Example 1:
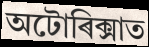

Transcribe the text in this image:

অটোৰিক্সাত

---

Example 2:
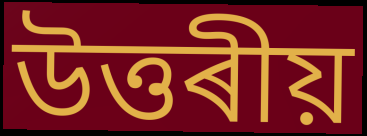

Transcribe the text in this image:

উত্তৰীয়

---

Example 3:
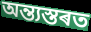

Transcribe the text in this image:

অন্ত্যস্তৰত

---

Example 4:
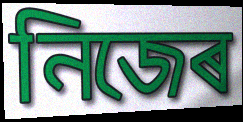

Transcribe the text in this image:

নিজেৰ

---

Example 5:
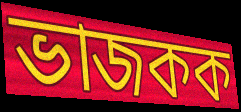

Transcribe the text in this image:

ভাজকক